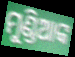
ମୁଣ୍ଡିଆଙ୍କ